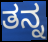
ತನ್ನ